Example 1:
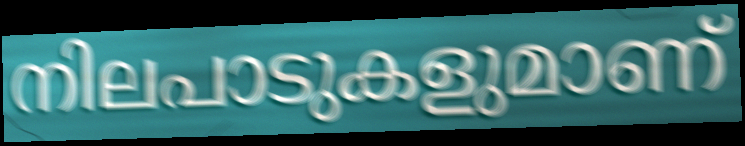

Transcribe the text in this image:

നിലപാടുകളുമാണ്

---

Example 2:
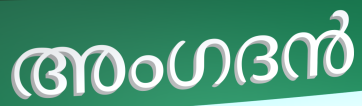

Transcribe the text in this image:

അംഗദൻ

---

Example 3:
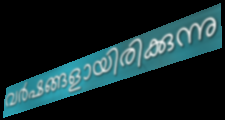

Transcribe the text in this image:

വർഷങ്ങളായിരിക്കുന്നു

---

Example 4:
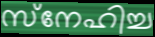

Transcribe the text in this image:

സ്‌നേഹിച്ച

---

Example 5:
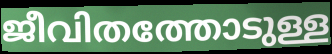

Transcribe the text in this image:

ജീവിതത്തോടുള്ള